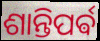
ଶାନ୍ତିପର୍ଵ